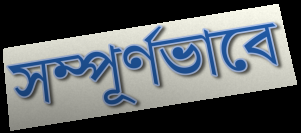
সম্পূৰ্ণভাবে